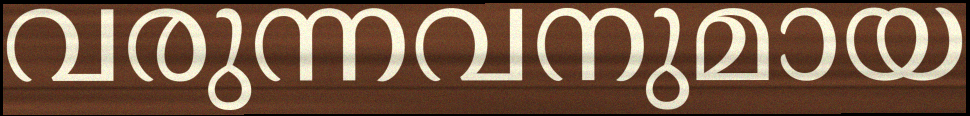
വരുന്നവനുമായ